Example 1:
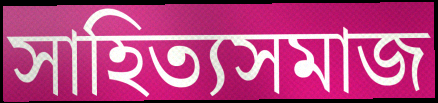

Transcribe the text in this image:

সাহিত্যসমাজ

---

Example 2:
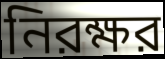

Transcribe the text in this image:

নিরক্ষর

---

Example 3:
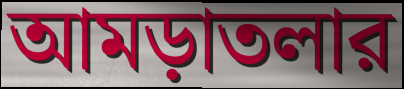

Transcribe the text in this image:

আমড়াতলার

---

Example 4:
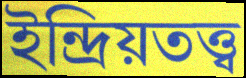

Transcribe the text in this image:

ইন্দ্রিয়তত্ত্ব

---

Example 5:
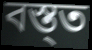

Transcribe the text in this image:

বস্ত্ত